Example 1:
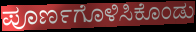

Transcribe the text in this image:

ಪೂರ್ಣಗೊಳಿಸಿಕೊಂಡು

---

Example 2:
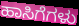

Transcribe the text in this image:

ಹಾಸಿಗೆಗಳು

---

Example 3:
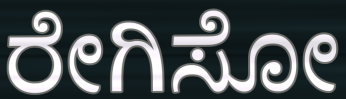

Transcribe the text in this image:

ರೇಗಿಸೋ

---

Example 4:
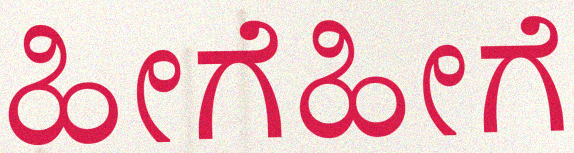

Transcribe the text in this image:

ಹೀಗೆಹೀಗೆ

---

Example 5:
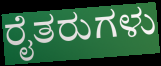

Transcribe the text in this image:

ರೈತರುಗಳು